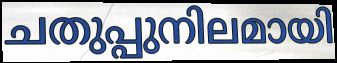
ചതുപ്പുനിലമായി